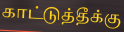
காட்டுத்தீக்கு